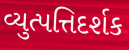
વ્યુત્પત્તિદર્શક